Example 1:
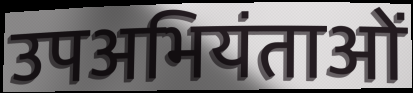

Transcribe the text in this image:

उपअभियंताओं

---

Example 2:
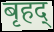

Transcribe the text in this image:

बृहद्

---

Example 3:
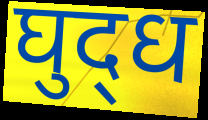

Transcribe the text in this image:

घुद्ध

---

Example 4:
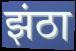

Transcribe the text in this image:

झंठा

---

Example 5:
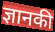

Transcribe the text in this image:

ज्ञानकी